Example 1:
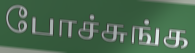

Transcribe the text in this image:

போச்சுங்க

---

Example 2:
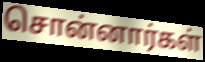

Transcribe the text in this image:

சொன்னார்கள்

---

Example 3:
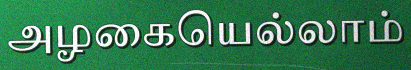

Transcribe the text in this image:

அழகையெல்லாம்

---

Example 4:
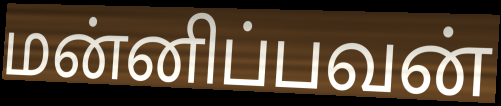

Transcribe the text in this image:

மன்னிப்பவன்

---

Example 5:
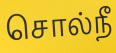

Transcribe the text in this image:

சொல்நீ